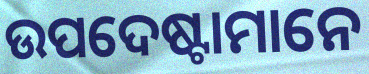
ଉପଦେଷ୍ଟାମାନେ